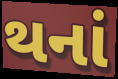
થનાં